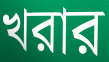
খরার